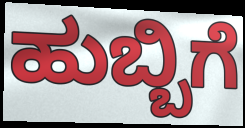
ಹುಬ್ಬಿಗೆ